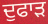
ਦੁਫਾੜ